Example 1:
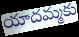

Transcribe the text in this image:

యాదమ్మకు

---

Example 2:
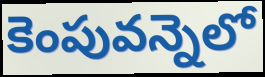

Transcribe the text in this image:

కెంపువన్నెలో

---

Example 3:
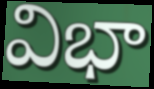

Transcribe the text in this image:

విభా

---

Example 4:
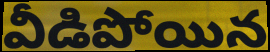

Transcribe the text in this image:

వీడిపోయిన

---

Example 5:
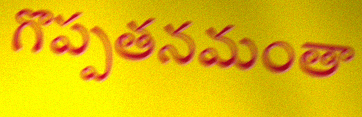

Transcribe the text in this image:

గొప్పతనమంతా